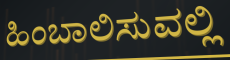
ಹಿಂಬಾಲಿಸುವಲ್ಲಿ